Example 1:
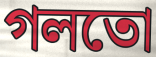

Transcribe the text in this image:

গলতো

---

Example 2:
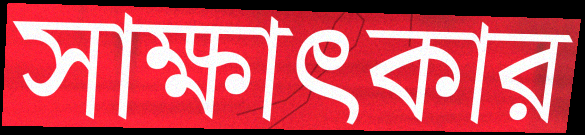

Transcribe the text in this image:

সাক্ষাৎকার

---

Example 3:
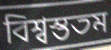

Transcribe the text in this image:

বিশ্বস্ততম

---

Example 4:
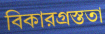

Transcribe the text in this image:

বিকারগ্রস্ততা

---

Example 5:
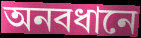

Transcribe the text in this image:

অনবধানে